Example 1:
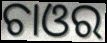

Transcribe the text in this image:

ଚାଓର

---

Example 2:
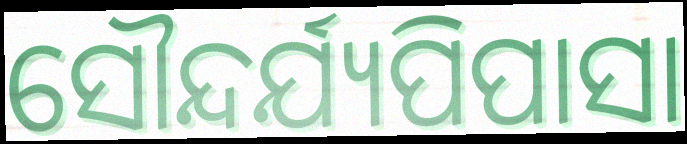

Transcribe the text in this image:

ସୌନ୍ଦର୍ଯ୍ୟପିପାସା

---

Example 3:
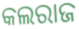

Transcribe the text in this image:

କଲରାଜ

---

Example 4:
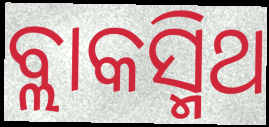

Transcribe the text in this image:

ବ୍ଲାକସ୍ମିଥ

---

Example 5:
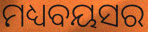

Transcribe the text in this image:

ମଧ୍ୟବୟସର